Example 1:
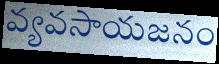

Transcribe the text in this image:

వ్యవసాయజనం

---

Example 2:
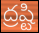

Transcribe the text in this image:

ద్రష్టి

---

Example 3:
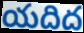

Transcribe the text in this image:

యదిద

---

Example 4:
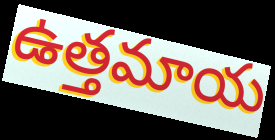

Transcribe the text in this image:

ఉత్తమాయ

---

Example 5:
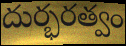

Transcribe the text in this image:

దుర్భరత్వం